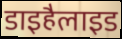
डाइहैलाइड